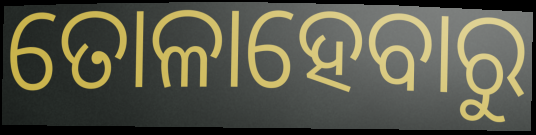
ତୋଳାହେବାରୁ